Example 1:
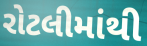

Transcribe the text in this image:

રોટલીમાંથી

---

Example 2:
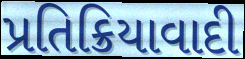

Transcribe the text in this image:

પ્રતિક્રિયાવાદી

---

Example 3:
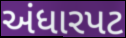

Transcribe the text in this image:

અંધારપટ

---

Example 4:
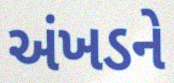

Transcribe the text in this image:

અંખડને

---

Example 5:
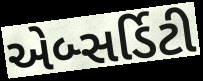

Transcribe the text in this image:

એબ્સર્ડિટી